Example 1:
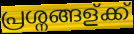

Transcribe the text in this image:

പ്രശ്നങ്ങള്ക്ക്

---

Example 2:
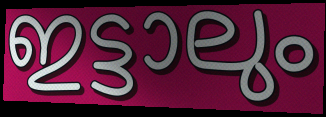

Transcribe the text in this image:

ഇട്ടാലും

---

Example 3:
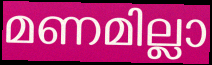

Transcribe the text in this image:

മണമില്ലാ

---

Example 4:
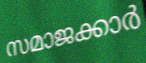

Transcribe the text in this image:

സമാജക്കാർ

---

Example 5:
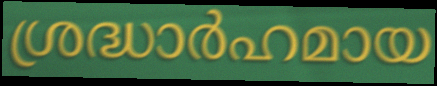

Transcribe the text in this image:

ശ്രദ്ധാർഹമായ